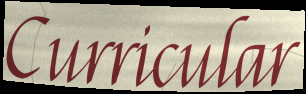
Curricular